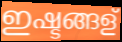
ഇഷ്ടങ്ങള്